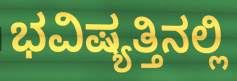
ಭವಿಷ್ಯತ್ತಿನಲ್ಲಿ